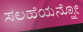
ಸಲಹೆಯನ್ನೋ